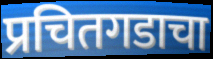
प्रचितगडाचा